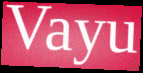
Vayu